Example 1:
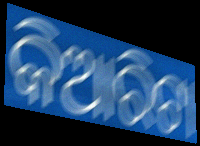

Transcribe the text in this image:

କିଆରିଟା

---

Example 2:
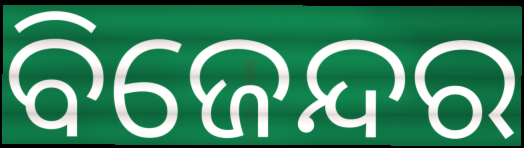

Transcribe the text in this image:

ବିଜେନ୍ଦର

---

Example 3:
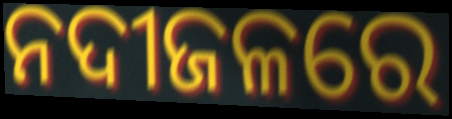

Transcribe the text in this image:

ନଦୀଜଳରେ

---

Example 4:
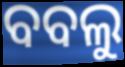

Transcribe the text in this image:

ବବଲୁ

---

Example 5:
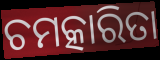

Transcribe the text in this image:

ଚମତ୍କାରିତା